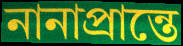
নানাপ্রান্তে